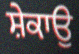
ਸ਼ੇਕਾਉ